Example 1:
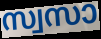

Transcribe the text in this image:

സ്വസാ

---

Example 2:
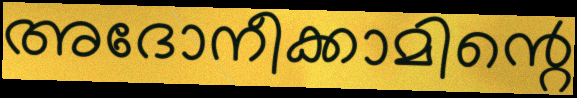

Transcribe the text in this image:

അദോനീക്കാമിന്റെ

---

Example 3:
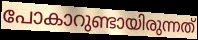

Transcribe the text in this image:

പോകാറുണ്ടായിരുന്നത്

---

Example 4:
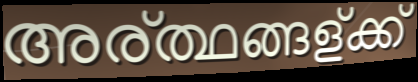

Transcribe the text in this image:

അര്ത്ഥങ്ങള്ക്ക്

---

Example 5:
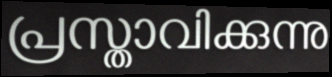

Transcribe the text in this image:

പ്രസ്താവിക്കുന്നു